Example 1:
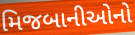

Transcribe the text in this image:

મિજબાનીઓનો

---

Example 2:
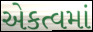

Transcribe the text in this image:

એકત્વમાં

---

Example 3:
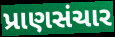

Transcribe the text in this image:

પ્રાણસંચાર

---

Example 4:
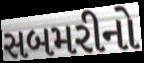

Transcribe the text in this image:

સબમરીનો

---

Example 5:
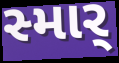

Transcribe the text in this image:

સ્માર્